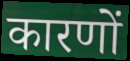
कारणों